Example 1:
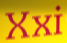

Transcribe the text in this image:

Xxi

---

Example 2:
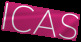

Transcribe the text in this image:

ICAS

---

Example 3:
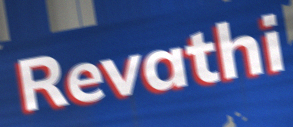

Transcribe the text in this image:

Revathi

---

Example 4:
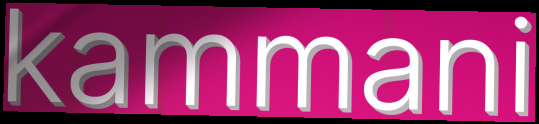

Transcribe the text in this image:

kammani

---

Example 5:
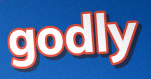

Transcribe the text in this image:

godly